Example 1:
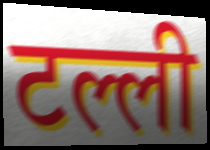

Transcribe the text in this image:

टल्ली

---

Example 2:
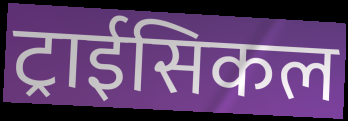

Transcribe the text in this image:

ट्राईसिकल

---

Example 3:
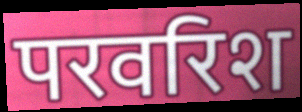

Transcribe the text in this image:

परवरिश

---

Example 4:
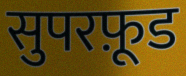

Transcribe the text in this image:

सुपरफ़ूड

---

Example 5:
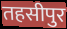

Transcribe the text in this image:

तहसीपुर